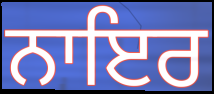
ਨਾਇਰ